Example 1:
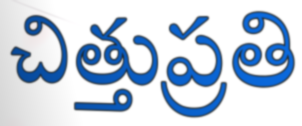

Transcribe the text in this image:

చిత్తుప్రతి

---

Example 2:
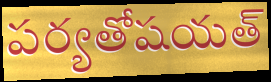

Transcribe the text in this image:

పర్యతోషయత్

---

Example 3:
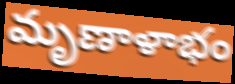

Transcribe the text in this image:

మృణాళాభం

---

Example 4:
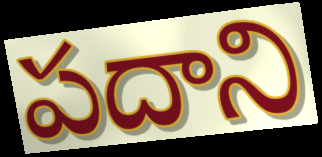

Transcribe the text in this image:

పదాని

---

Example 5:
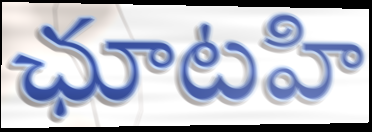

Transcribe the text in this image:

ఛూటహి